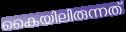
കൈയിലിരുന്നത്